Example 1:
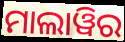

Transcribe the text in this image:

ମାଲାୱିର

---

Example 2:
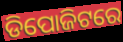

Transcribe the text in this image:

ଡିପୋଜିଟରେ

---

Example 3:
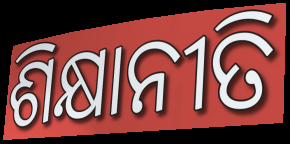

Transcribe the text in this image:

ଶିକ୍ଷାନୀତି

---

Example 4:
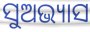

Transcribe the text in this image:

ସୁଅଭ୍ୟାସ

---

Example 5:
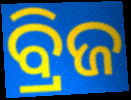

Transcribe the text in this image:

ବ୍ରିଜ